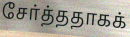
சேர்த்ததாகக்